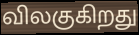
விலகுகிறது